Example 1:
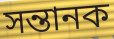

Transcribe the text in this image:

সন্তানক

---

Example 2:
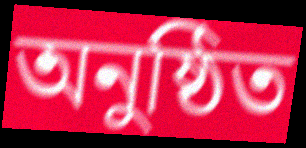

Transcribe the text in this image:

অনুষ্ঠিত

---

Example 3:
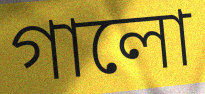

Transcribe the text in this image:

গালো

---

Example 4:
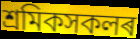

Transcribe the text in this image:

শ্ৰমিকসকলৰ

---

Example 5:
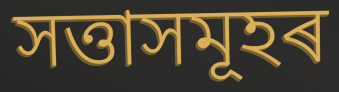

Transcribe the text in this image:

সত্তাসমূহৰ